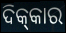
ଦିକ୍‌କାର